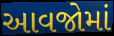
આવજોમાં